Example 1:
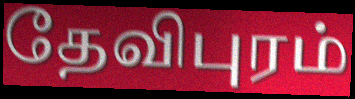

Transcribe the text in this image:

தேவிபுரம்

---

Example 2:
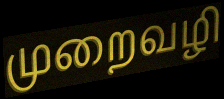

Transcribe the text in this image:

முறைவழி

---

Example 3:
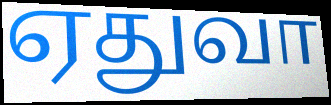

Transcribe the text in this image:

ஏதுவா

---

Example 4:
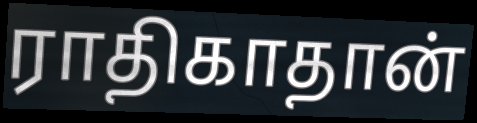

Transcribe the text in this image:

ராதிகாதான்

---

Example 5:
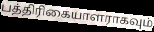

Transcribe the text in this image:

பத்திரிகையாளராகவும்